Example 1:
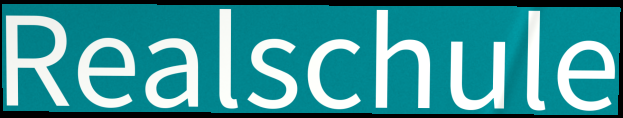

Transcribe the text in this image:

Realschule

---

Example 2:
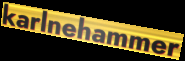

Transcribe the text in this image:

karlnehammer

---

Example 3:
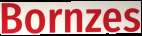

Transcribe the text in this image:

Bornzes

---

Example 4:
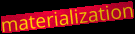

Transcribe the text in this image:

materialization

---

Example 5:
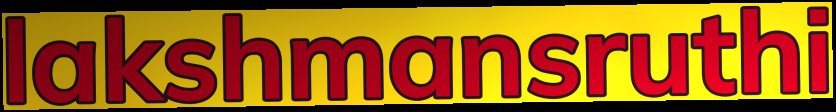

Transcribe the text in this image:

lakshmansruthi